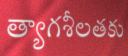
త్యాగశీలతకు